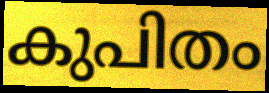
കുപിതം